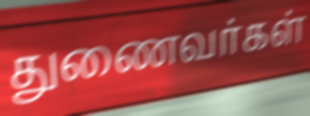
துணைவர்கள்